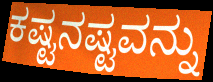
ಕಷ್ಟನಷ್ಟವನ್ನು